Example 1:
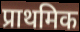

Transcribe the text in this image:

प्राथमिक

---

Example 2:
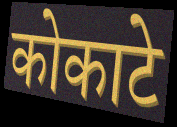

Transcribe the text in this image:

कोकाटे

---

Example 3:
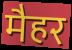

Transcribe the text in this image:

मैहर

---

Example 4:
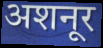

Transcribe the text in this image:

अशनूर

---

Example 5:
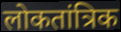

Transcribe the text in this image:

लोकतांत्रिक